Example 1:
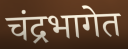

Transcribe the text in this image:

चंद्रभागेत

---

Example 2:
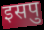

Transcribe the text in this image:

इसपु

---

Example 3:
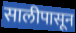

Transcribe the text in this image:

सालीपासून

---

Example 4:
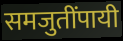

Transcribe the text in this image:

समजुतींपायी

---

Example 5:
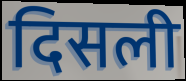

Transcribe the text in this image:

दिसली